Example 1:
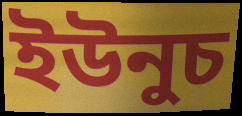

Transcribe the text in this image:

ইউনুচ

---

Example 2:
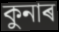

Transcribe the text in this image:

কুনাৰ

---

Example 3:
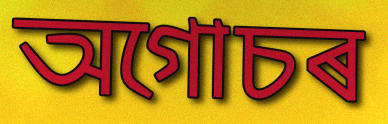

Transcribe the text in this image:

অগোচৰ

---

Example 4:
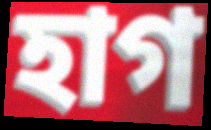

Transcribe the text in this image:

হাগ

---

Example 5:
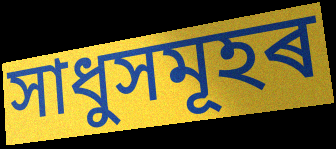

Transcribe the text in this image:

সাধুসমূহৰ